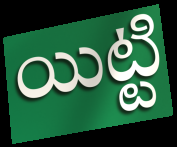
యిట్టి